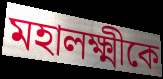
মহালক্ষ্মীকে